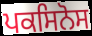
ਪਕਸਿਨੋਸ